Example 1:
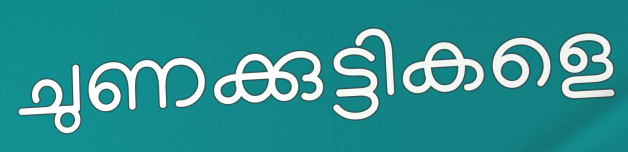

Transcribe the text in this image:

ചുണക്കുട്ടികളെ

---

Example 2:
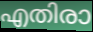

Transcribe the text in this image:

എതിരാ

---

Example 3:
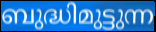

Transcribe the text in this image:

ബുദ്ധിമുട്ടുന്ന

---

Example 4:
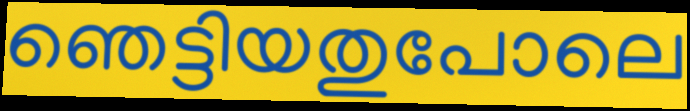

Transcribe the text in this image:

ഞെട്ടിയതുപോലെ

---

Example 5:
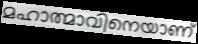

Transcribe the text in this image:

മഹാത്മാവിനെയാണ്